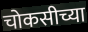
चोकसीच्या